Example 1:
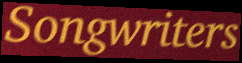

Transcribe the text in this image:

Songwriters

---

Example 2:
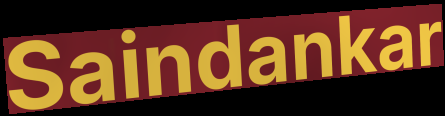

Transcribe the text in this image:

Saindankar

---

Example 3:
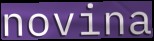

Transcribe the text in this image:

novina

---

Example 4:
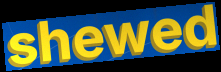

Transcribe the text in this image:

shewed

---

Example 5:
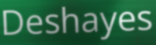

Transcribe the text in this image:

Deshayes